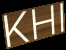
KHI